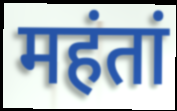
महंतां